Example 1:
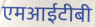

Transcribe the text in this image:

एमआईटीबी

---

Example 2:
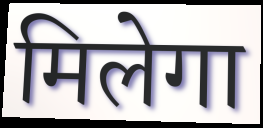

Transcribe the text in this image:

मिलेगा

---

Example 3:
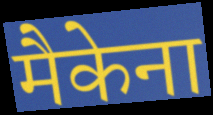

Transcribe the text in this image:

मैकेना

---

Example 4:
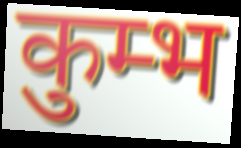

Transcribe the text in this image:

कुम्भ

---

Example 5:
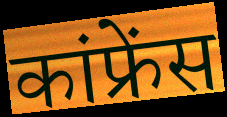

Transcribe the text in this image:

कांफ्रेंस